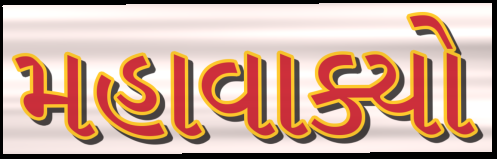
મહાવાક્યો